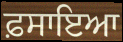
ਫ਼ਸਾਇਆ